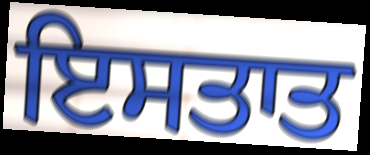
ਇਸਤਾਤ